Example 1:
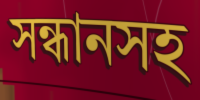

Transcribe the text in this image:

সন্ধানসহ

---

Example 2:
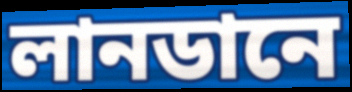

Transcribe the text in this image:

লানডানে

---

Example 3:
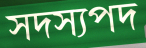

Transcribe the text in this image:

সদস্যপদ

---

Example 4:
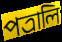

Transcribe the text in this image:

পত্রালি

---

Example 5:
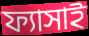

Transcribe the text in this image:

ফ্যাসাই